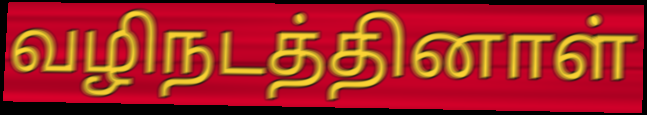
வழிநடத்தினாள்